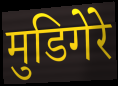
मुडिगेरे